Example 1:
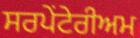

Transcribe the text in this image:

ਸਰਪੇਂਟੇਰੀਅਮ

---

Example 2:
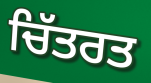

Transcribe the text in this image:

ਚਿੱਤਰਤ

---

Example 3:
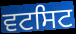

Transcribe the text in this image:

ਵਟਸਿਟ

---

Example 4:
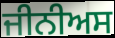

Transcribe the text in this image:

ਜੀਨੀਅਸ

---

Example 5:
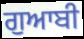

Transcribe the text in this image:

ਗੁਆਬੀ